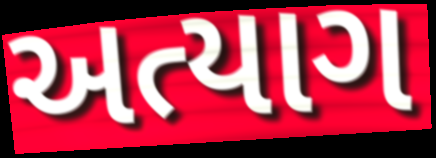
અત્યાગ